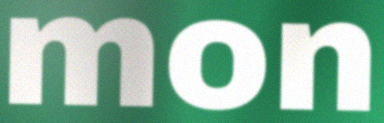
mon